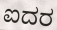
ಐದರ